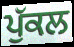
ਪੁੱਕਲ